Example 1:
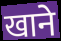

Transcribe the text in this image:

खाने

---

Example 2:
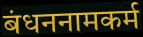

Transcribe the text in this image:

बंधननामकर्म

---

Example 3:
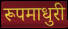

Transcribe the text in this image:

रूपमाधुरी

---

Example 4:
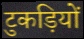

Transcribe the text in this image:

टुकड़ियों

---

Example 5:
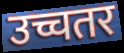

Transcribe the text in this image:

उच्चतर